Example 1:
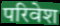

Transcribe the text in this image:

परिवेश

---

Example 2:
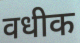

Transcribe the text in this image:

वधीक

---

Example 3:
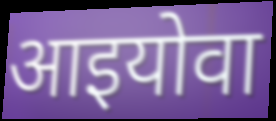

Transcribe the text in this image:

आइयोवा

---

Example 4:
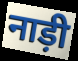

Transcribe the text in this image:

नाड़ी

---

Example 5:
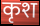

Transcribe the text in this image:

कृश